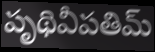
పృథివీపతిమ్